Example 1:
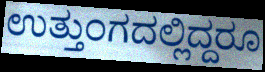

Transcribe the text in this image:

ಉತ್ತುಂಗದಲ್ಲಿದ್ದರೂ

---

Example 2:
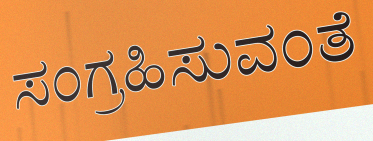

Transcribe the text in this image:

ಸಂಗ್ರಹಿಸುವಂತೆ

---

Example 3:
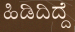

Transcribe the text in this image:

ಹಿಡಿದಿದ್ದೆ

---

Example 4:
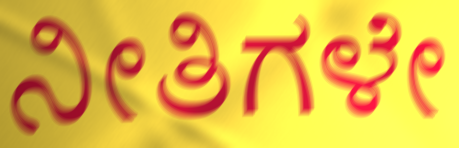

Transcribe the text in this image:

ನೀತಿಗಳೇ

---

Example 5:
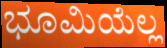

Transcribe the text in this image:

ಭೂಮಿಯೆಲ್ಲ